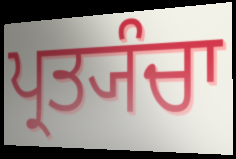
ਪ੍ਰਤ੍ਯੰਚਾ